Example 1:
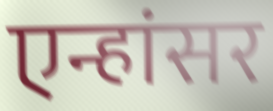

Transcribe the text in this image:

एन्हांसर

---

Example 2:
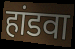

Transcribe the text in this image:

हांडवा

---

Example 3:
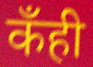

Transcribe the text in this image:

कँही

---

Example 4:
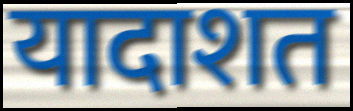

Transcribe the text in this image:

यादाशत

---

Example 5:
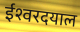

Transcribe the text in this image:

ईश्वरदयाल